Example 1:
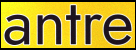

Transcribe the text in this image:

antre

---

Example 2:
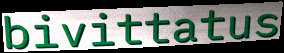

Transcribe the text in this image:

bivittatus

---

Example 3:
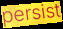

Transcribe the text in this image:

persist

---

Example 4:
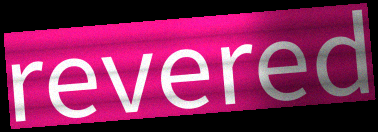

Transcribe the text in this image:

revered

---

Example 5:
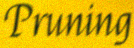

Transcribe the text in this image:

Pruning